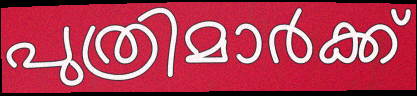
പുത്രിമാർക്ക്